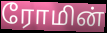
ரோமின்